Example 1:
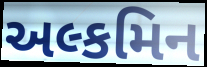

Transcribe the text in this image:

અલ્કમિન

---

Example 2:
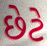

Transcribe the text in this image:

છેટે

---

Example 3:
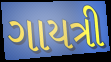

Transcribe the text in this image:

ગાયત્રી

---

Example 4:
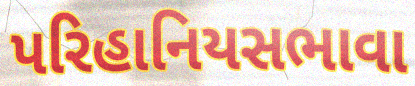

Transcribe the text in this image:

પરિહાનિયસભાવા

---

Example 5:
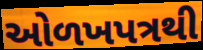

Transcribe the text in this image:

ઓળખપત્રથી